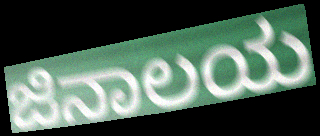
ಜಿನಾಲಯ